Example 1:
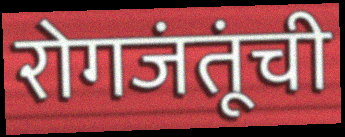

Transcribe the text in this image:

रोगजंतूंची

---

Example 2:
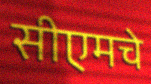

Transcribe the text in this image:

सीएमचे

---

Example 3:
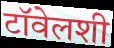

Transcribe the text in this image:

टॉवेलशी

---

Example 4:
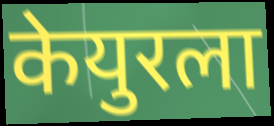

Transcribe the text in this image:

केयुरला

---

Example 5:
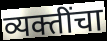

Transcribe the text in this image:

व्यक्‍तींचा